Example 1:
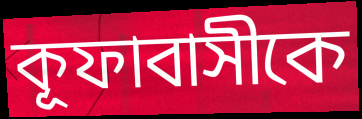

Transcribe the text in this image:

কূফাবাসীকে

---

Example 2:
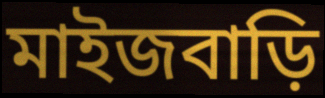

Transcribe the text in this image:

মাইজবাড়ি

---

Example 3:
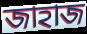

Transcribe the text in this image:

জাহাজ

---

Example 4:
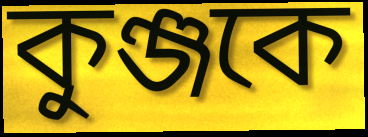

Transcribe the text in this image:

কুঞ্জকে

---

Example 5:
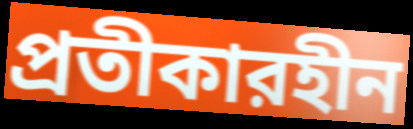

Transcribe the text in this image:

প্রতীকারহীন